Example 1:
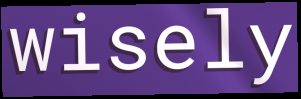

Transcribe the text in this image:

wisely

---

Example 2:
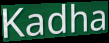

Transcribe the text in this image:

Kadha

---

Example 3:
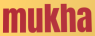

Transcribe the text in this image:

mukha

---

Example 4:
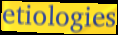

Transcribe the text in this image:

etiologies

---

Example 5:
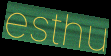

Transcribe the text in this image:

esthu